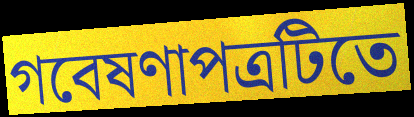
গবেষণাপত্রটিতে